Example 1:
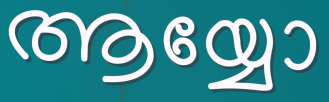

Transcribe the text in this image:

ആയ്യോ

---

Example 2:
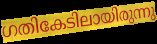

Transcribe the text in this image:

ഗതികേടിലായിരുന്നു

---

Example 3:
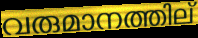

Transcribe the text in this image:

വരുമാനത്തില്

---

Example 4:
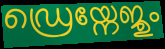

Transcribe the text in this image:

ഡ്രെയ്നേജും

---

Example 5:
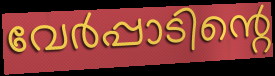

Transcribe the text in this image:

വേർപ്പാടിന്റെ